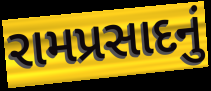
રામપ્રસાદનું